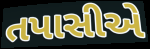
તપાસીએ